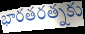
భారతరత్నకు